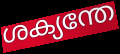
ശക്യന്തേ